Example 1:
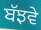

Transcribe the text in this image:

ਬੱਝਵੇ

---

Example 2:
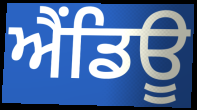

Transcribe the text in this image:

ਐਂਡਿਊ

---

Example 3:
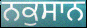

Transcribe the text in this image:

ਨਕੁਸਾਨ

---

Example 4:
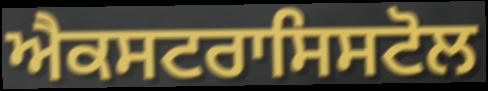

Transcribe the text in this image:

ਐਕਸਟਰਾਸਿਸਟੋਲ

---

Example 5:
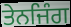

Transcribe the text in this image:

ਤੇਨਜਿੰਗ